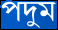
পদুম